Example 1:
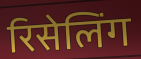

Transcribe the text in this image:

रिसेलिंग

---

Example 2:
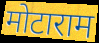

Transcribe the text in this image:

मोटाराम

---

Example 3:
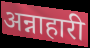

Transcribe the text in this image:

अन्नाहारी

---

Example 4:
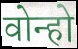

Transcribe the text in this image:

वोन्हो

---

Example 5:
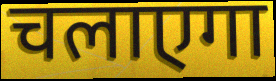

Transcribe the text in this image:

चलाएगा